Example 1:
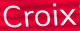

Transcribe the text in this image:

Croix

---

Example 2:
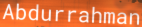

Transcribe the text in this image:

Abdurrahman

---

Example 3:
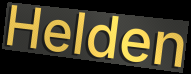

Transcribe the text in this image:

Helden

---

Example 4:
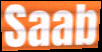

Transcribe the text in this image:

Saab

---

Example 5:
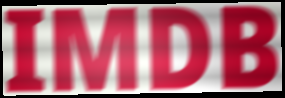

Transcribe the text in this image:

IMDB